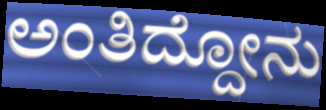
ಅಂತಿದ್ದೋನು